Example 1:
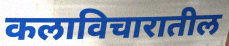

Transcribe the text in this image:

कलाविचारातील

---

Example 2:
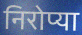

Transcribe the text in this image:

निरोप्या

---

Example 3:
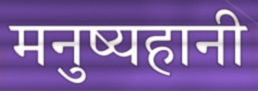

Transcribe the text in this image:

मनुष्यहानी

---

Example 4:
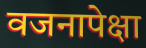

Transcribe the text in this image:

वजनापेक्षा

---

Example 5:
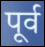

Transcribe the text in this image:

पूर्व